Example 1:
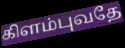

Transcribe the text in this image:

கிளம்புவதே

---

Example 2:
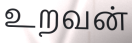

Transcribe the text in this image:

உறவன்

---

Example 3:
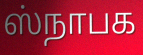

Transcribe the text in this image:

ஸ்நாபக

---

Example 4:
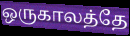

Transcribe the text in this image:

ஒருகாலத்தே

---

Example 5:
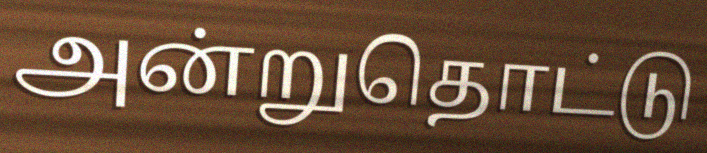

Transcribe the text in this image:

அன்றுதொட்டு